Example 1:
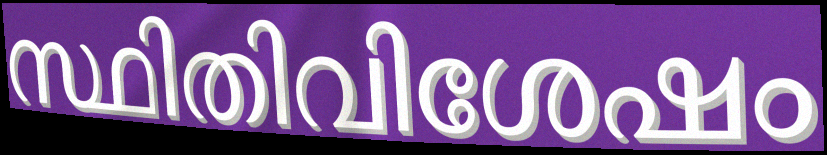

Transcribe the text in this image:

സ്ഥിതിവിശേഷം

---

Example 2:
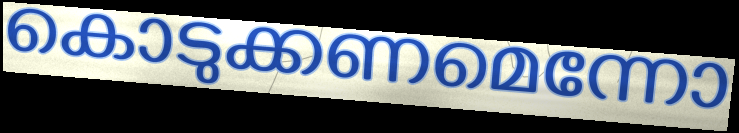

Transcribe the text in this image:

കൊടുക്കണമെന്നോ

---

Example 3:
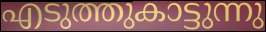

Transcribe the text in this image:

എടുത്തുകാട്ടുന്നു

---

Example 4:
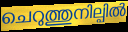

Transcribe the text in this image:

ചെറുത്തുനില്പിൽ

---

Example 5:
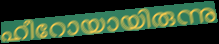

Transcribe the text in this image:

ഹീറോയായിരുന്നു